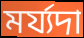
মৰ্য্যদা